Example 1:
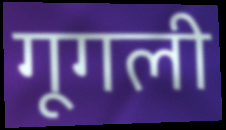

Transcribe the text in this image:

गूगली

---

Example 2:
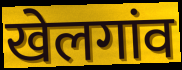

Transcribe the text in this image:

खेलगांव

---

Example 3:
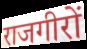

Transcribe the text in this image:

राजगीरों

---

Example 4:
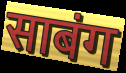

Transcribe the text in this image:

साबंग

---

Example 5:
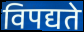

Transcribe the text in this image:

विपद्यते